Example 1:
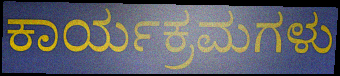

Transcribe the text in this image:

ಕಾರ್ಯಕ್ರಮಗಳು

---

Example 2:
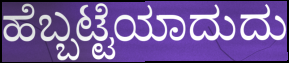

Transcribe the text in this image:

ಹೆಬ್ಬಟ್ಟೆಯಾದುದು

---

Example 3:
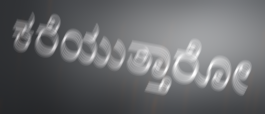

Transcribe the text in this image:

ಕರೆಯುತ್ತಾರೋ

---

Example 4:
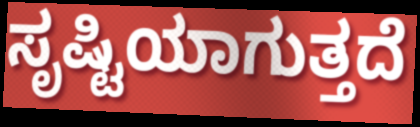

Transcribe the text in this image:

ಸೃಷ್ಟಿಯಾಗುತ್ತದೆ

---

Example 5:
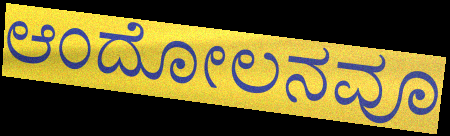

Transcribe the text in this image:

ಆಂದೋಲನವೂ